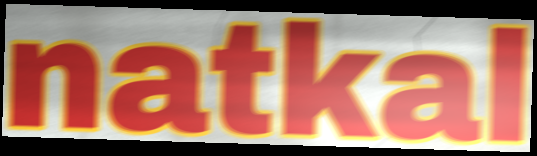
natkal